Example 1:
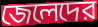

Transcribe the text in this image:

জেলেদের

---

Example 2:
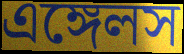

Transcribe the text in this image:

এঙ্গেলস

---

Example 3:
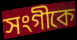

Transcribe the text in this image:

সংগীকে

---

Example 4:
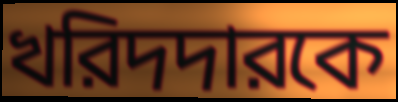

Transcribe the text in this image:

খরিদদারকে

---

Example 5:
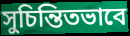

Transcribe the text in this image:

সুচিন্তিতভাবে